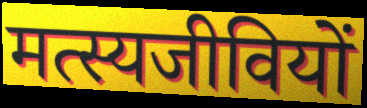
मत्स्यजीवियों